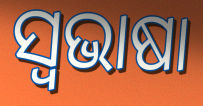
ସ୍ୱଭାଷା